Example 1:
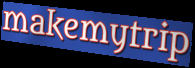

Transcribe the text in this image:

makemytrip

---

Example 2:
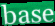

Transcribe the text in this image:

base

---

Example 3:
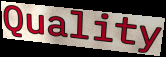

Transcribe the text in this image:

Quality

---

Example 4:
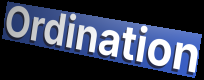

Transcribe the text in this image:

Ordination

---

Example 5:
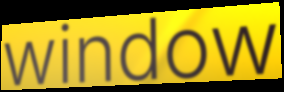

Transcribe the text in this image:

window